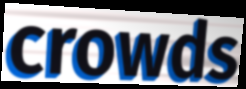
crowds